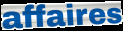
affaires